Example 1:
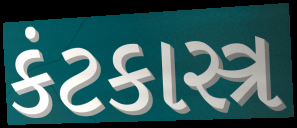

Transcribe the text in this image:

કંટકાસ્ત્ર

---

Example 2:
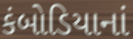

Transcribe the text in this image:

કંબોડિયાનાં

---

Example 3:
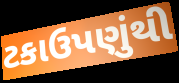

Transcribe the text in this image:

ટકાઉપણુંથી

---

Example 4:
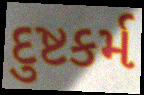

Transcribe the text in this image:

દુષ્ટકર્મ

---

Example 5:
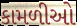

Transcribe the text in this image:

કામળીઓ